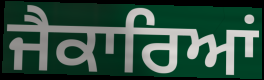
ਜੈਕਾਰਿਆਂ